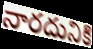
నారదునికి